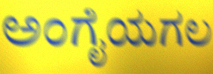
ಅಂಗೈಯಗಲ